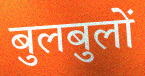
बुलबुलों